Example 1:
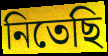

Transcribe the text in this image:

নিতেছি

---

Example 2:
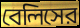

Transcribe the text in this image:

বেলিসের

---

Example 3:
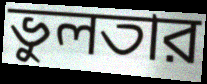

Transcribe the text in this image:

ভুলতার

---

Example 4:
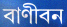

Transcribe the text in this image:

বাণীবন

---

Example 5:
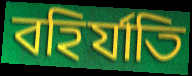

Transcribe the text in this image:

বহির্যাতি